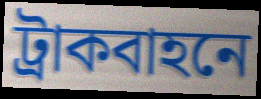
ট্রাকবাহনে